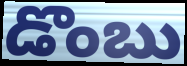
డొంబు